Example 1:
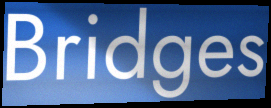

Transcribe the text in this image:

Bridges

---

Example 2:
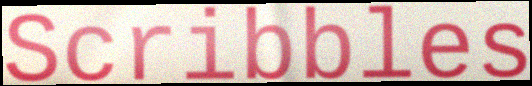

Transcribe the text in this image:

Scribbles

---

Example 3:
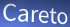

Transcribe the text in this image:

Careto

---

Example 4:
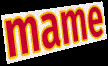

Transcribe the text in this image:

mame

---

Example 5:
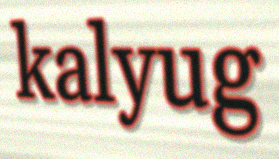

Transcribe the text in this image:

kalyug